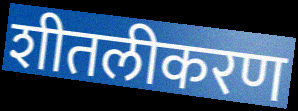
शीतलीकरण